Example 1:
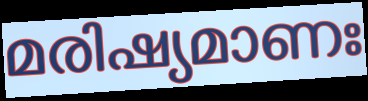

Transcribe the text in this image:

മരിഷ്യമാണഃ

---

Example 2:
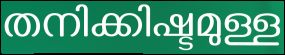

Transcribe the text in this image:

തനിക്കിഷ്ടമുള്ള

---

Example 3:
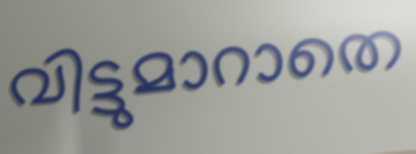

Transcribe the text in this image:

വിട്ടുമാറാതെ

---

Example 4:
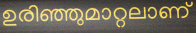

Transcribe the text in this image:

ഉരിഞ്ഞുമാറ്റലാണ്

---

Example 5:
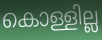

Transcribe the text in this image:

കൊള്ളില്ല